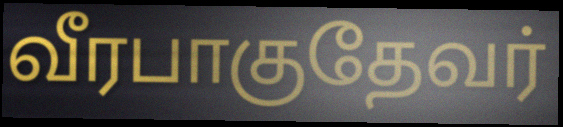
வீரபாகுதேவர்